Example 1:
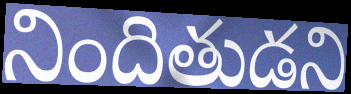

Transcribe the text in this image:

నిందితుడని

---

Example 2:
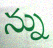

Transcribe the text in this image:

న్ను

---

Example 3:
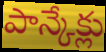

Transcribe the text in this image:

పాన్కేక్లు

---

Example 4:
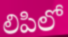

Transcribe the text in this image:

లిపిలో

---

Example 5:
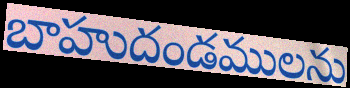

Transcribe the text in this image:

బాహుదండములను